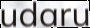
udaru